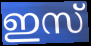
ഇസ്